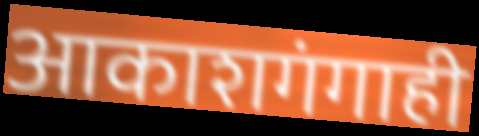
आकाशगंगाही